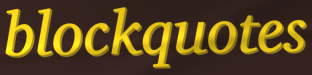
blockquotes